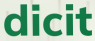
dicit